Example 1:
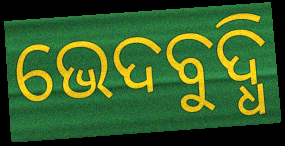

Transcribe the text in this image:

ଭେଦବୁଦ୍ଧି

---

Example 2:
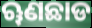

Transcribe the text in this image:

ୠଣଛାଡ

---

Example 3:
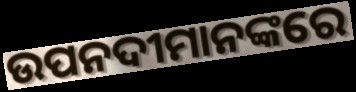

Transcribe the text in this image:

ଉପନଦୀମାନଙ୍କରେ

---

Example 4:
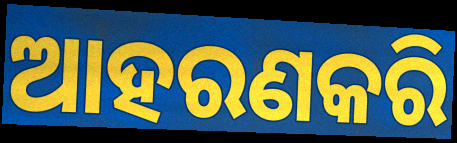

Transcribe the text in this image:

ଆହରଣକରି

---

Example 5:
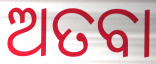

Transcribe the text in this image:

ଅତବା